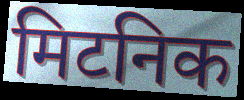
मिटनिक